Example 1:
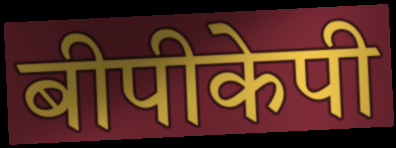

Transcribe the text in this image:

बीपीकेपी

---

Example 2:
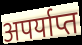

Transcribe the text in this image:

अपर्याप्त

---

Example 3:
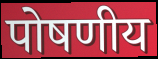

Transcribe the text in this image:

पोषणीय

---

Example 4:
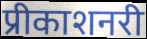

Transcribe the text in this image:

प्रीकाशनरी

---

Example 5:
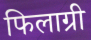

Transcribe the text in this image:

फिलाग्री